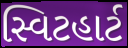
સ્વિટહાર્ટ